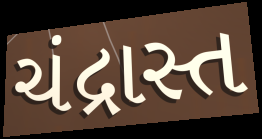
ચંદ્રાસ્ત